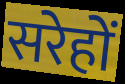
सरेहों